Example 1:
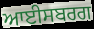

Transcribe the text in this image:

ਆਈਸਬਰਗ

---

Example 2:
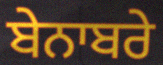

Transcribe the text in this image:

ਬੇਨਾਬਰੇ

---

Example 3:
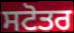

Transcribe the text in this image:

ਸਟੋਤਰ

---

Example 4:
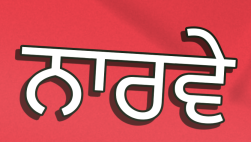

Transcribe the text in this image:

ਨਾਰਵੇ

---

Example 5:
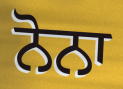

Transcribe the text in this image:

ਨੋਨਾ